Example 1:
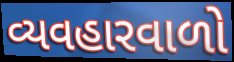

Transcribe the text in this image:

વ્યવહારવાળો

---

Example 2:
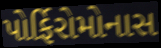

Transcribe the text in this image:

પોર્ફિરોમોનાસ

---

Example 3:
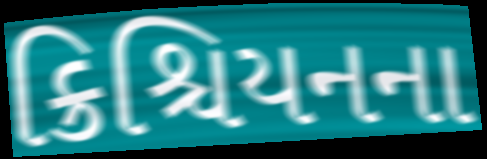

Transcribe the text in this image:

ક્રિશ્ચિયનના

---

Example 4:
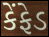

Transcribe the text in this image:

કેંફેડ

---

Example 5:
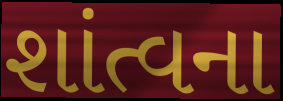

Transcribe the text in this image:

શાંત્વના